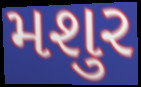
મશુર